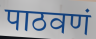
पाठवणं